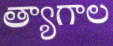
త్యాగాల